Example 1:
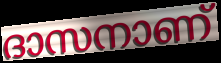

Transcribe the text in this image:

ദാസനാണ്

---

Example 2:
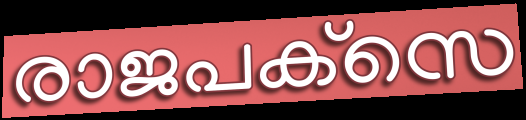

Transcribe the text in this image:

രാജപക്‌സെ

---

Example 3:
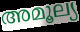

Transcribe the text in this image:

അമൂല്യ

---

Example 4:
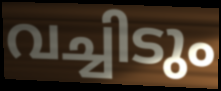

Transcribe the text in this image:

വച്ചിടും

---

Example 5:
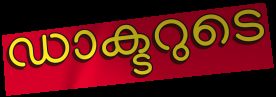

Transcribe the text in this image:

ഡാക്ടറുടെ